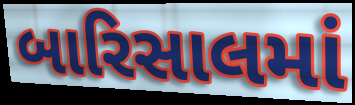
બારિસાલમાં